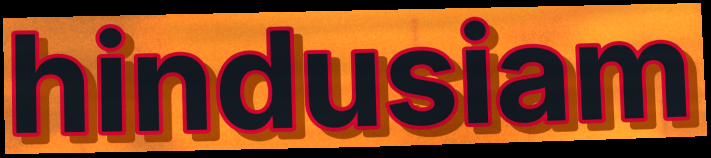
hindusiam